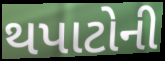
થપાટોની